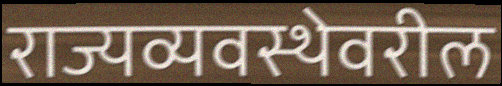
राज्यव्यवस्थेवरील